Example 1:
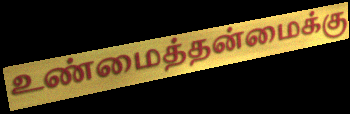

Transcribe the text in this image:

உண்மைத்தன்மைக்கு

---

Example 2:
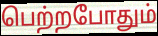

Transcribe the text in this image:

பெற்றபோதும்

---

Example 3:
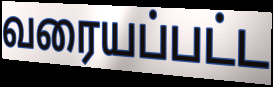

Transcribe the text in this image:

வரையப்பட்ட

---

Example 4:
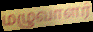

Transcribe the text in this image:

மழுவாளர்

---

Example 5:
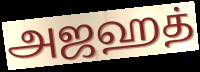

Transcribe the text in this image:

அஜஹத்